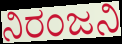
ನಿರಂಜನಿ